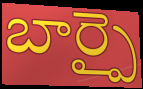
బార్పై